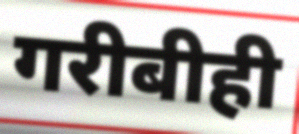
गरीबीही